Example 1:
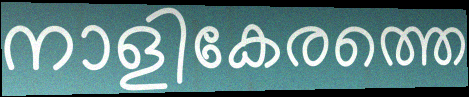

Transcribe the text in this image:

നാളികേരത്തെ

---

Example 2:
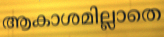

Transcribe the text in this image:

ആകാശമില്ലാതെ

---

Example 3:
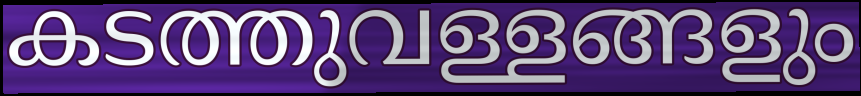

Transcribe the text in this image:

കടത്തുവള്ളങ്ങളും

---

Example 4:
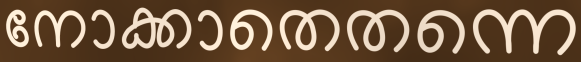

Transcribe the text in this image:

നോക്കാതെതന്നെ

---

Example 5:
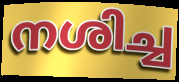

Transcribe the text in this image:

നശിച്ച